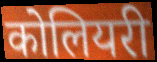
कोलियरी